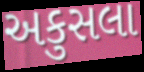
અકુસલા